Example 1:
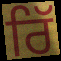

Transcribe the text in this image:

ਰਿੱ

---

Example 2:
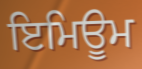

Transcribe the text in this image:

ਇਮਿਊਮ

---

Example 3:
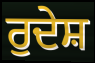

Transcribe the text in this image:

ਰੁਦੇਸ਼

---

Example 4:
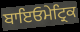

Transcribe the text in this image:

ਬਾਇਓਮੇਟ੍ਰਿਕ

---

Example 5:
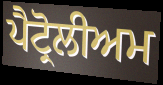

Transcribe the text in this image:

ਪੈਟ੍ਰੋਲੀਅਮ